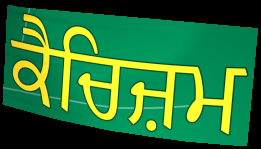
ਕੈਚਿਜ਼ਮ